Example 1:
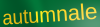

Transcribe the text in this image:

autumnale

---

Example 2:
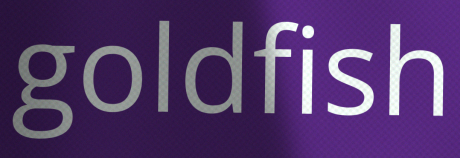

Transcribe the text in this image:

goldfish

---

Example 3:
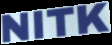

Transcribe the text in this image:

NITK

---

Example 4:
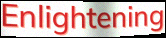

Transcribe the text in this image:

Enlightening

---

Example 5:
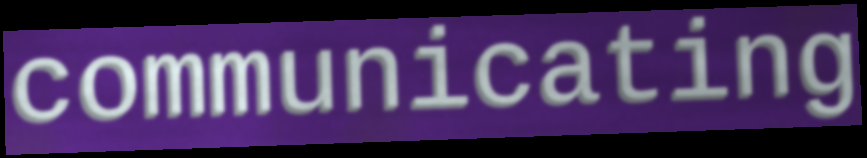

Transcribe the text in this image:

communicating